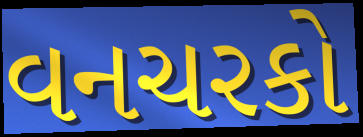
વનચરકો